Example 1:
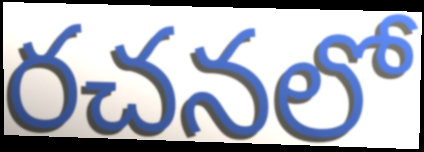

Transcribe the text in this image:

రచనలో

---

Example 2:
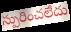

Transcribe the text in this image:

స్పురించలేదు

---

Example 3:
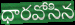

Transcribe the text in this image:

ధారవోసిన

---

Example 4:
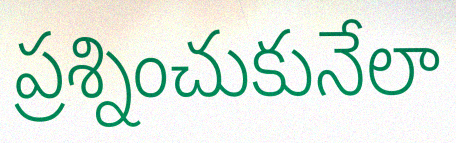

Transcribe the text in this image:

ప్రశ్నించుకునేలా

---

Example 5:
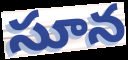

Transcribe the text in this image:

సూన